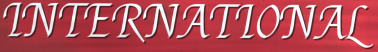
INTERNATIONAL